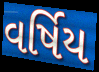
વર્ષિય